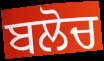
ਬਲੋਚ